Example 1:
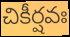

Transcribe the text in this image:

చికీర్షవః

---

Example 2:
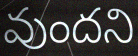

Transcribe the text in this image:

వుందని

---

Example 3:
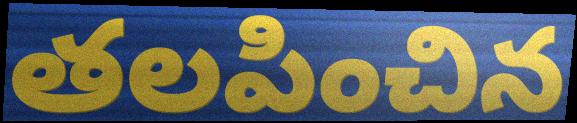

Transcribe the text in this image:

తలపించిన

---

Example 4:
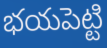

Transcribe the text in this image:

భయపెట్టి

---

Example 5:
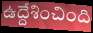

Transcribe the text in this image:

ఉద్దేశించింది